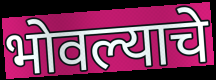
भोवल्याचे